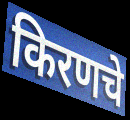
किरणचे